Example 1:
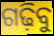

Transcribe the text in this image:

ଗଢ଼ିବୁ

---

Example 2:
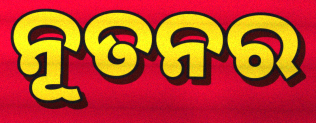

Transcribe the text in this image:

ନୂତନର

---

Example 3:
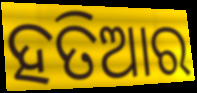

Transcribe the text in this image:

ହତିଆର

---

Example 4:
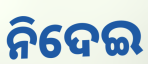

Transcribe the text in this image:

ନିଦେଇ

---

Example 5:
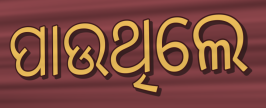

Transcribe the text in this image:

ପାଉଥିଲେ